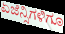
ಏಜೆನ್ಸಿಗಳಿಗೂ